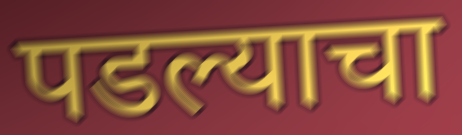
पडल्याचा